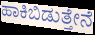
ಹಾಕಿಬಿಡುತ್ತೇನೆ